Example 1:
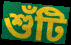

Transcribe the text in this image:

শুঁটি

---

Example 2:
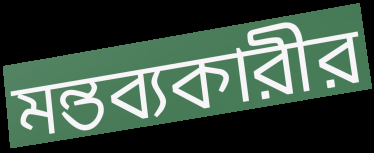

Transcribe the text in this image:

মন্তব্যকারীর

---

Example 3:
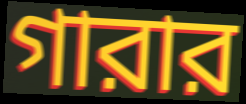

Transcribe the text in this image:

গারার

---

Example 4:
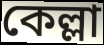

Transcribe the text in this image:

কেল্লা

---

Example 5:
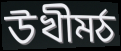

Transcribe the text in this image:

উখীমঠ